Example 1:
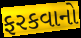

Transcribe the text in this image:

ફરકવાનો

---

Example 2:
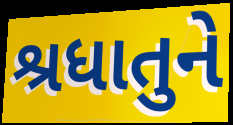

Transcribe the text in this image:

શ્રધાતુને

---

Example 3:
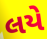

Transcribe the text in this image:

લયે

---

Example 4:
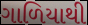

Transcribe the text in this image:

ગાળિયાથી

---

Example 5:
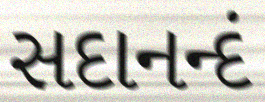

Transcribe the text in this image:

સદાનન્દં